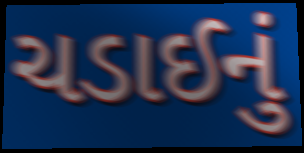
ચડાઈનું